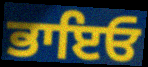
ਭਾਇਓ